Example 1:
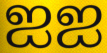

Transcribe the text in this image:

ஐஐ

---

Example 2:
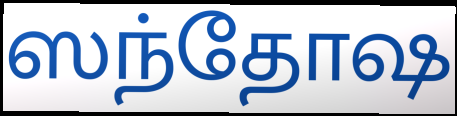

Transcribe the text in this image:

ஸந்தோஷ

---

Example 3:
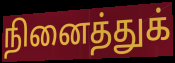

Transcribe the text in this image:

நினைத்துக்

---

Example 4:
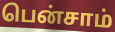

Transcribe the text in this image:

பென்சாம்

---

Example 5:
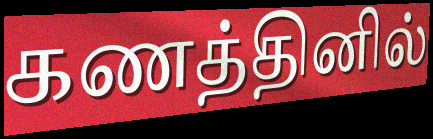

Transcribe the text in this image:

கணத்தினில்